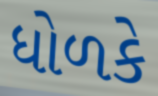
ધોળકે